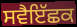
ਸਵੈਇੱਛਕ